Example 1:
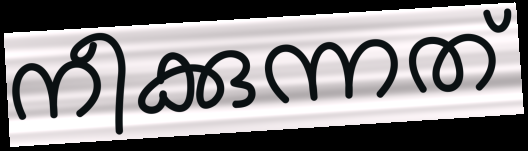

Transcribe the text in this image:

നീക്കുന്നത്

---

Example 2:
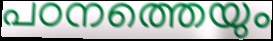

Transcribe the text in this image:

പഠനത്തെയും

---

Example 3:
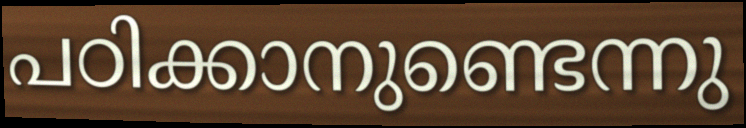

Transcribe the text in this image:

പഠിക്കാനുണ്ടെന്നു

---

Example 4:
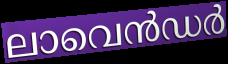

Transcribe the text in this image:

ലാവെൻഡർ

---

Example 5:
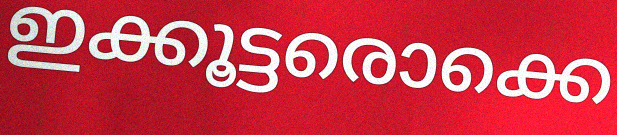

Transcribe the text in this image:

ഇക്കൂട്ടരൊക്കെ